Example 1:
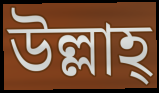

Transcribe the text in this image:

উল্লাহ্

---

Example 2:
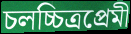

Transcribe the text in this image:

চলচ্চিত্রপ্রেমী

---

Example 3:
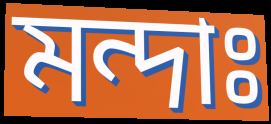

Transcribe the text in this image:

মন্দাঃ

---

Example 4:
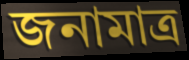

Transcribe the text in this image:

জনামাত্র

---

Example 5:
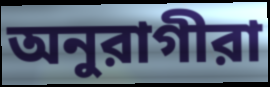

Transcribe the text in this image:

অনুরাগীরা